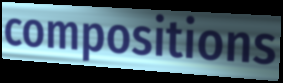
compositions